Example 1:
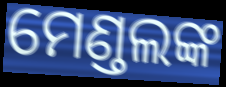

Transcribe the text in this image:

ମେଣ୍ଡଲଙ୍କ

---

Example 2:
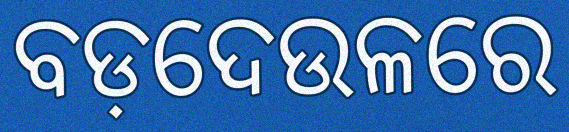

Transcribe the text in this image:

ବଡ଼ଦେଉଳରେ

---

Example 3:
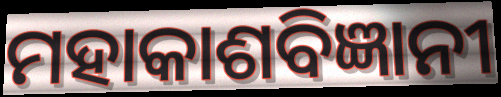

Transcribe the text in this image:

ମହାକାଶବିଜ୍ଞାନୀ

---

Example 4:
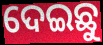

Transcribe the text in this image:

ଦେଇଛୁ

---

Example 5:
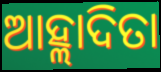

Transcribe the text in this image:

ଆହ୍ଲାଦିତା